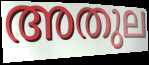
അതുല